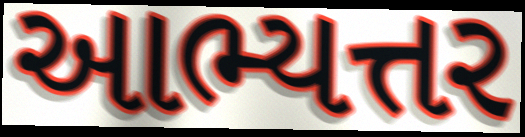
આભ્યત્તર